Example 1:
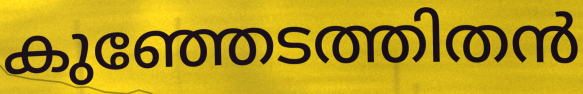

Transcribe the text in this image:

കുഞ്ഞേടത്തിതൻ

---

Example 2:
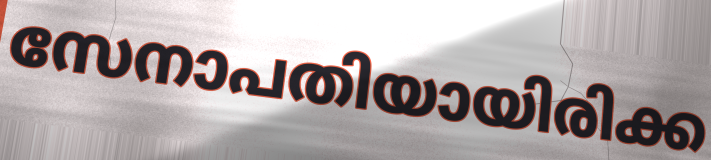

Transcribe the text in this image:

സേനാപതിയായിരിക്ക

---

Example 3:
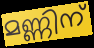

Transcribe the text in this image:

മണ്ണിന്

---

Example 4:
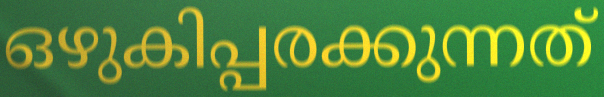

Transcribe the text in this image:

ഒഴുകിപ്പരക്കുന്നത്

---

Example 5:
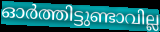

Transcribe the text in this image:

ഓർത്തിട്ടുണ്ടാവില്ല